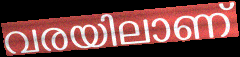
വരയിലാണ്